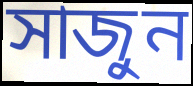
সাজুন